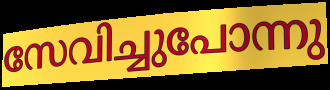
സേവിച്ചുപോന്നു